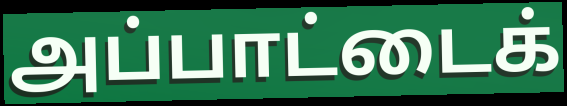
அப்பாட்டைக்